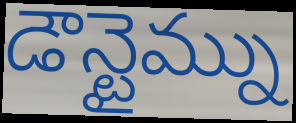
డౌన్టైమ్ను